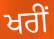
ਖਰੀਂ